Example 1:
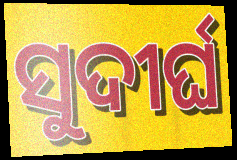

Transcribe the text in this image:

ସୁଦୀର୍ଘ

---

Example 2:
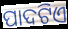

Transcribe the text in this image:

ପାଦଟିଏ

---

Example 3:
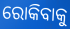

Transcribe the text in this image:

ରୋକିବାକୁ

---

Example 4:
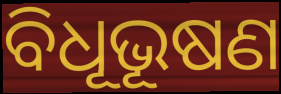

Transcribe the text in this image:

ବିଧୂଭୂଷଣ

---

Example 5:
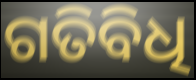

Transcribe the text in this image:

ଗତିବିଧି